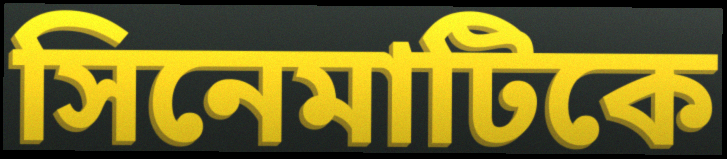
সিনেমাটিকে